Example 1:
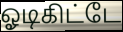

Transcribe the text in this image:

ஓடிகிட்டே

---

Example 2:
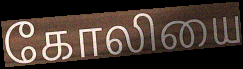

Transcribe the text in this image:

கோலியை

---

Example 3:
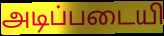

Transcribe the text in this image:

அடிப்படையி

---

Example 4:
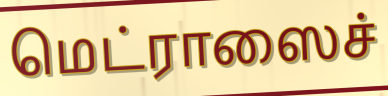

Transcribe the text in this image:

மெட்ராஸைச்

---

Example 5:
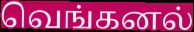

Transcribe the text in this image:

வெங்கனல்